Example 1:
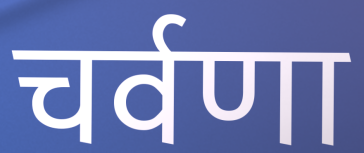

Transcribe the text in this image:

चर्वणा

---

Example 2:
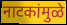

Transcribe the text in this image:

नाटकांमुळे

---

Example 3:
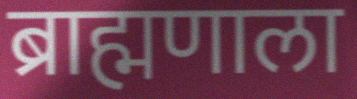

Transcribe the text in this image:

ब्राह्मणाला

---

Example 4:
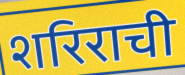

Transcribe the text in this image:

शरिराची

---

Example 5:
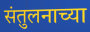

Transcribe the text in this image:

संतुलनाच्या